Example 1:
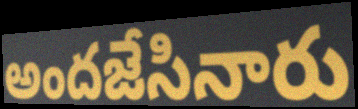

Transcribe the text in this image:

అందజేసినారు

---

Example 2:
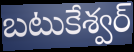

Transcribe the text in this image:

బటుకేశ్వర్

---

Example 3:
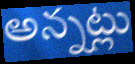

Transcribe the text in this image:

అన్నట్లు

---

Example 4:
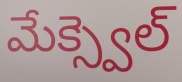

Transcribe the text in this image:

మేక్స్వెల్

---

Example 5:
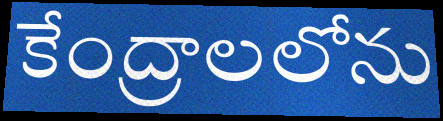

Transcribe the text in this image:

కేంద్రాలలోను